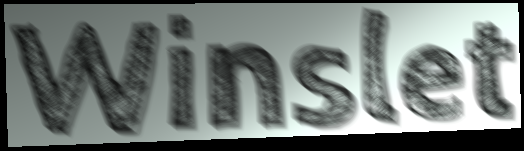
Winslet